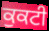
ਕੁਕਟੀ